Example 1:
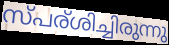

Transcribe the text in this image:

സ്പര്ശിച്ചിരുന്നു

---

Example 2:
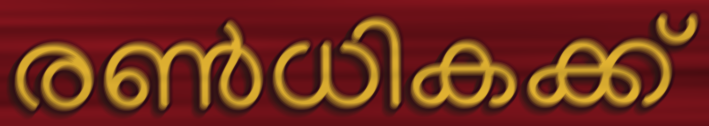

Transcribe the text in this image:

രൺധികക്ക്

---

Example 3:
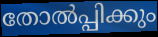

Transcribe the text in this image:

തോൽപ്പിക്കും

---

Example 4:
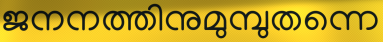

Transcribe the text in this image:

ജനനത്തിനുമുമ്പുതന്നെ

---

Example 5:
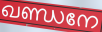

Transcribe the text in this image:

ഖണ്ഡനേ